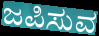
ಜಪಿಸುವ